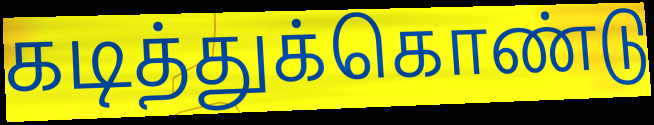
கடித்துக்கொண்டு